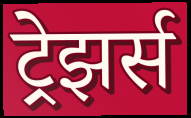
ट्रेझर्स